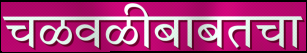
चळवळीबाबतचा